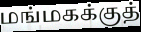
மங்மகக்குத்